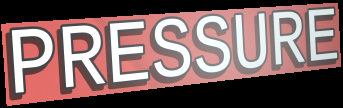
PRESSURE